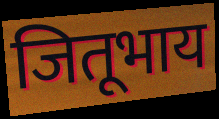
जितूभाय